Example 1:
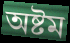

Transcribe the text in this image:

অষ্টম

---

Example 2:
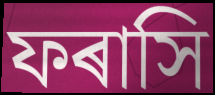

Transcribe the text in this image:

ফৰাসি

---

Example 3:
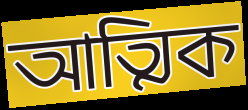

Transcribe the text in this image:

আত্মিক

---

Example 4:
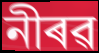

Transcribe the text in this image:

নীৰৱ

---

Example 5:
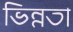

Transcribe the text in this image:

ভিন্নতা